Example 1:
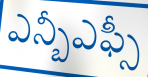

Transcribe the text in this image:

ఎన్బీఎఫ్సీ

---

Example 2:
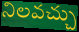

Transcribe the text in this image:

నిలవచ్చు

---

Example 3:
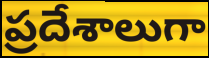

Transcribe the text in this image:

ప్రదేశాలుగా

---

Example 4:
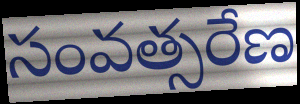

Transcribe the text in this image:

సంవత్సరేణ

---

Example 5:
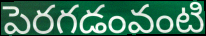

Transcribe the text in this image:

పెరగడంవంటి